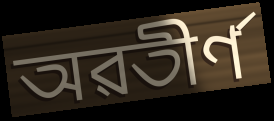
অৱতীৰ্ণ